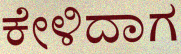
ಕೇಳಿದಾಗ